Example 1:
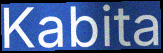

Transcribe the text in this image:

Kabita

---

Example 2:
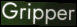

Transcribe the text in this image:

Gripper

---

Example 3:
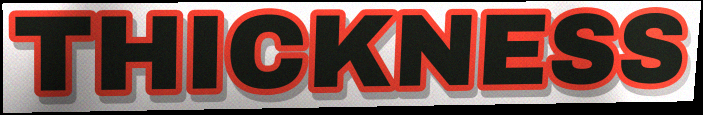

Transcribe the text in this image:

THICKNESS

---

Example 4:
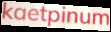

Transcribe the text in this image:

kaetpinum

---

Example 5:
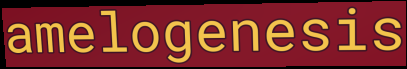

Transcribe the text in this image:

amelogenesis